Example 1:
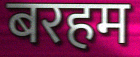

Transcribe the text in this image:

बरहम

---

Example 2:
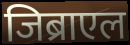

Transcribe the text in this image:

जिब्राएल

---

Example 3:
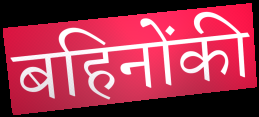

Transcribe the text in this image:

बहिनोंकी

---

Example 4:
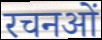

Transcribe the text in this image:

रचनओं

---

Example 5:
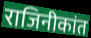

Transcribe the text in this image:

राजिनीकांत